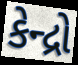
કેન્દ્રો